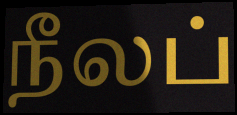
நீலப்